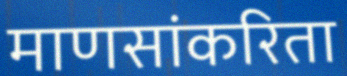
माणसांकरिता